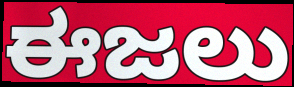
ಈಜಲು